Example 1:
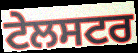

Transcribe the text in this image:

ਟੇਲਸਟਰ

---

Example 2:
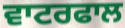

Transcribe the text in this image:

ਵਾਟਰਫਾਲ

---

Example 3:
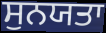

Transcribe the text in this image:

ਸੁਨਯਤਾ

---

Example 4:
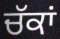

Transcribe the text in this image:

ਚੱਕਾਂ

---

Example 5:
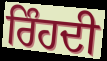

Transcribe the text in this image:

ਰਿੰਹਦੀ